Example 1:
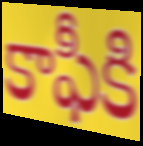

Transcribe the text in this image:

కాఫీకి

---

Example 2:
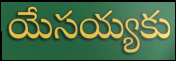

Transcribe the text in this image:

యేసయ్యకు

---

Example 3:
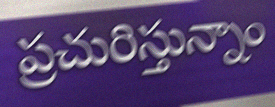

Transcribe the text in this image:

ప్రచురిస్తున్నాం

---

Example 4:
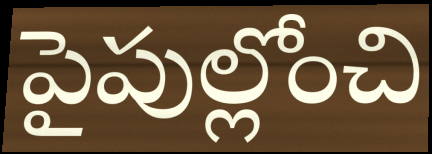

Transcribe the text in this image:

పైపుల్లోంచి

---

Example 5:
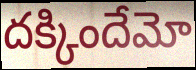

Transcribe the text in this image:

దక్కిందేమో